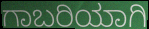
ಗಾಬರಿಯಾಗಿ